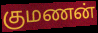
குமணன்